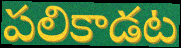
పలికాడట